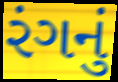
રંગનું